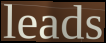
leads